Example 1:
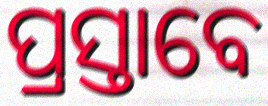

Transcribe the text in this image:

ପ୍ରସ୍ତାବେ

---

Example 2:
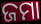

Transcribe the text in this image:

ଜମା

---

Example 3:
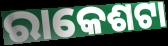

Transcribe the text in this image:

ରାକେଶଟା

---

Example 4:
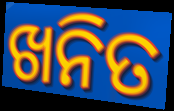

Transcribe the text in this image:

ଖନିତ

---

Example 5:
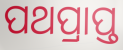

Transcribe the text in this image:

ପଥପ୍ରାପ୍ତ